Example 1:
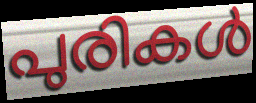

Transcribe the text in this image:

പുരികൾ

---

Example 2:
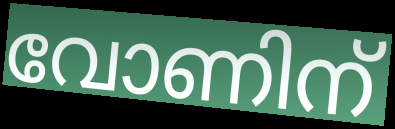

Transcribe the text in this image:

വോണിന്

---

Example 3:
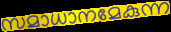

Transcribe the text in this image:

സമാധാനമേകുന്ന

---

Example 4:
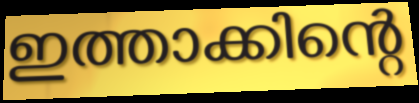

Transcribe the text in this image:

ഇത്താക്കിന്റെ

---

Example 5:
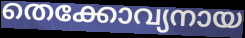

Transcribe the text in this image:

തെക്കോവ്യനായ